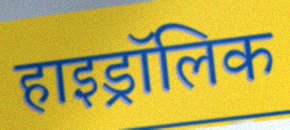
हाइड्रॉलिक